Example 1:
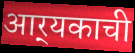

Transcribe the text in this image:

आर्यकाची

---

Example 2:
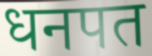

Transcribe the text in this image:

धनपत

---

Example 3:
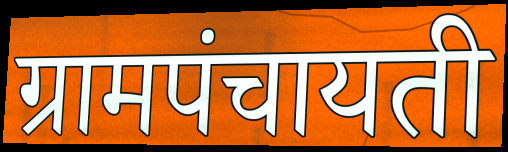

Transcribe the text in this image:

ग्रामपंचायती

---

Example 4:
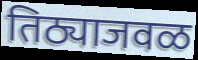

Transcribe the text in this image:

तिठ्याजवळ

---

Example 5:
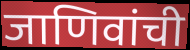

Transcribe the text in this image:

जाणिवांची